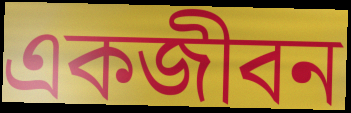
একজীবন